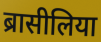
ब्रासीलिया